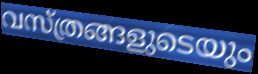
വസ്ത്രങ്ങളുടെയും